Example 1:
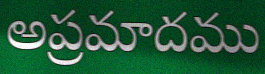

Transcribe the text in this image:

అప్రమాదము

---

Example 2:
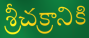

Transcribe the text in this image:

శ్రీచక్రానికి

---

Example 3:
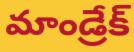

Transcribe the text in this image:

మాండ్రేక్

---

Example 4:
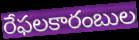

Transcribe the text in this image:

రేఫలకారంబుల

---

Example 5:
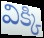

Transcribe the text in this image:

విక్కి